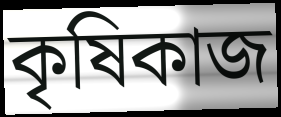
কৃষিকাজ